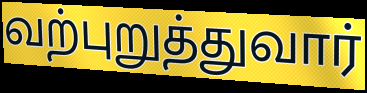
வற்புறுத்துவார்